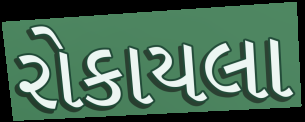
રોકાયલા